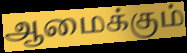
ஆமைக்கும்